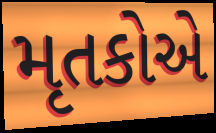
મૃતકોએ